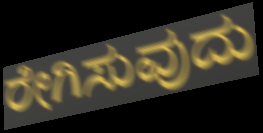
ರೇಗಿಸುವುದು